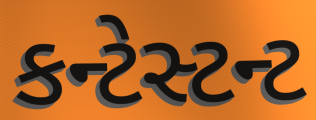
કન્ટેસ્ટન્ટ